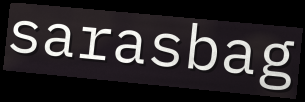
sarasbag